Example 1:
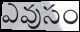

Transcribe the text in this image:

ఎవుసం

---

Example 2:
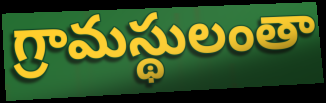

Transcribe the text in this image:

గ్రామస్థులంతా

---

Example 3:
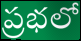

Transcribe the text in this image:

ప్రభలో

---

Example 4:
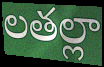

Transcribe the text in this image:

లతల్లా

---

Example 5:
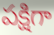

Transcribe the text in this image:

పక్షిగా